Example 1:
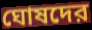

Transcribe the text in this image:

ঘোষদের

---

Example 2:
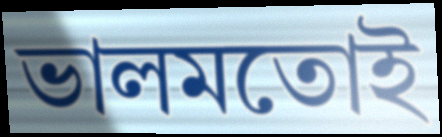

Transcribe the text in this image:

ভালমতোই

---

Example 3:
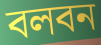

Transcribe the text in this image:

বলবন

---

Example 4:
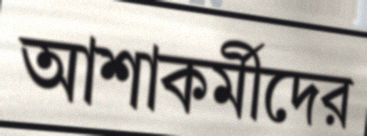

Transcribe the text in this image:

আশাকর্মীদের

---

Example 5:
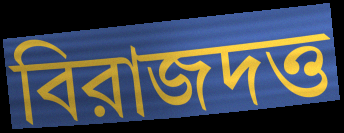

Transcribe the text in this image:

বিরাজদত্ত